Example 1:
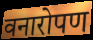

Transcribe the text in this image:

वनारोपण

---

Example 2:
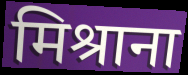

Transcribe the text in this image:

मिश्राना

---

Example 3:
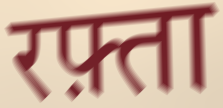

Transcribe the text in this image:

रफ़्ता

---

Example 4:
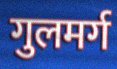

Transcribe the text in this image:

गुलमर्ग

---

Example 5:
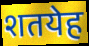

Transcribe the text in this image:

शतयेह